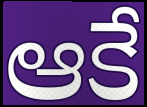
ఆకే